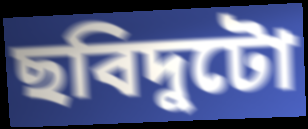
ছবিদুটো